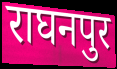
राघनपुर